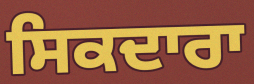
ਸਿਕਦਾਰਾ